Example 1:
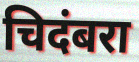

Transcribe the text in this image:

चिदंबरा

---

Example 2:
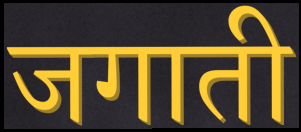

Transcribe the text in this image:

जगाती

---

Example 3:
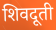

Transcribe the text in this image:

शिवदूती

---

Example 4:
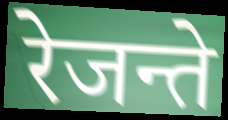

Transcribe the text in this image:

रेजन्ते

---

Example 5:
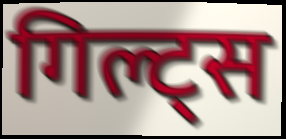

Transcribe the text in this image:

गिल्ट्स